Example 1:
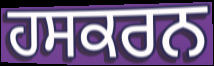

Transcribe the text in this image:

ਹਸਕਰਨ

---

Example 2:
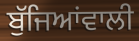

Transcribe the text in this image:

ਬੁੱਜਿਆਂਵਾਲੀ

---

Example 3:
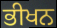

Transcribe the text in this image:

ਭੀਖਨ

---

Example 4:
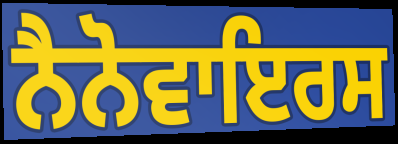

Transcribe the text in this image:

ਨੈਨੋਵਾਇਰਸ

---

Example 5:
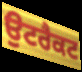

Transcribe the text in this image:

ਉਟਰੈਕਟ